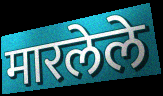
मारलेले